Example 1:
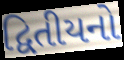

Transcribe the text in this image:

દ્વિતીયનો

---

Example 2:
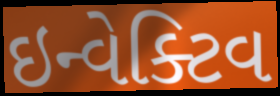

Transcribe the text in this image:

ઇન્વેક્ટિવ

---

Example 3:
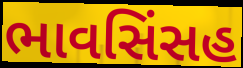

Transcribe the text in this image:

ભાવસિંસહ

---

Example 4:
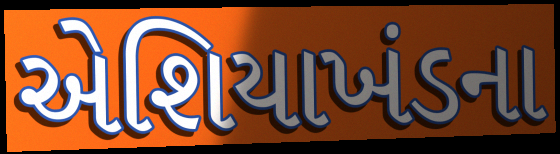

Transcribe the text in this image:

એશિયાખંડના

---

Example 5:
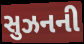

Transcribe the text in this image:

સુઝનની